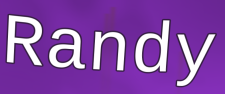
Randy